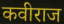
कवीराज